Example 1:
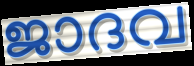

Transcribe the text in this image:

ജാദവ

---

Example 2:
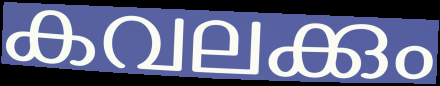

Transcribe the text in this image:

കവലക്കും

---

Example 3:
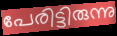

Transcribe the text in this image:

പേരിട്ടിരുന്നു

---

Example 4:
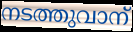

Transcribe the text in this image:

നടത്തുവാന്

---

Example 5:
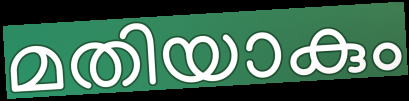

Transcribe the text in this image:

മതിയാകും